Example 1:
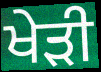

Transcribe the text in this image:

ਖੇੜੀ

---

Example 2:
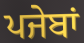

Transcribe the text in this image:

ਪਜੇਬਾਂ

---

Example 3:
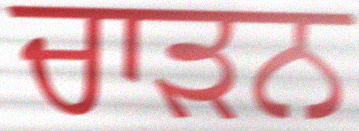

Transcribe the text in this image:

ਚਾੜਨ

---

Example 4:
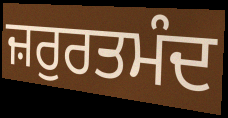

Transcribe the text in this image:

ਜ਼ਰੁਰਤਮੰਦ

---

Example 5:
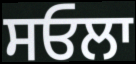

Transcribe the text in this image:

ਸਓਲਾ